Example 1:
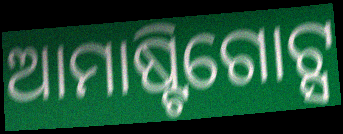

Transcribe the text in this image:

ଆମାଷ୍ଟିଗୋଟ୍ସ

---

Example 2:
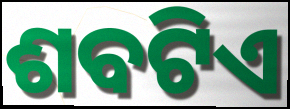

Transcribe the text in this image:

ଶବଟିଏ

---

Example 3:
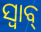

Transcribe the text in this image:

ସ୍ବାବ୍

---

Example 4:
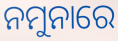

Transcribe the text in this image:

ନମୁନାରେ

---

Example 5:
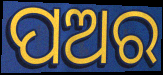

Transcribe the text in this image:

ପଅର